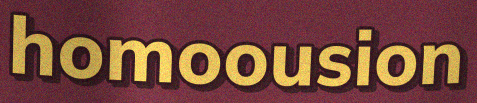
homoousion